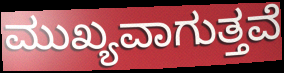
ಮುಖ್ಯವಾಗುತ್ತವೆ